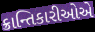
ક્રાન્તિકારીઓએ